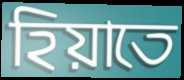
হিয়াতে